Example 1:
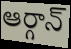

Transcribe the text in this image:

ఆర్గాన్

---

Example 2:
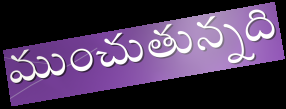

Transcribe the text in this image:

ముంచుతున్నది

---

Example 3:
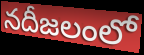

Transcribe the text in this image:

నదీజలంలో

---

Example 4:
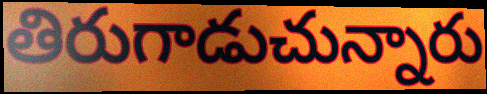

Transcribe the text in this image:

తిరుగాడుచున్నారు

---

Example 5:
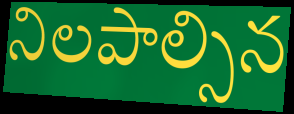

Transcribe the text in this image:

నిలపాల్సిన